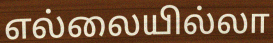
எல்லையில்லா